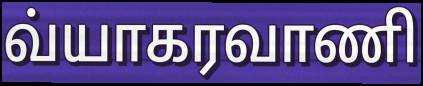
வ்யாகரவாணி